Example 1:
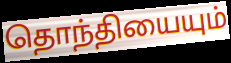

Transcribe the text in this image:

தொந்தியையும்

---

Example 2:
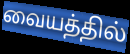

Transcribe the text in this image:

வையத்தில்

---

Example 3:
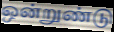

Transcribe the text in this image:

ஒன்றுண்டு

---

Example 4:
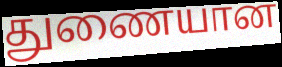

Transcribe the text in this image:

துணையான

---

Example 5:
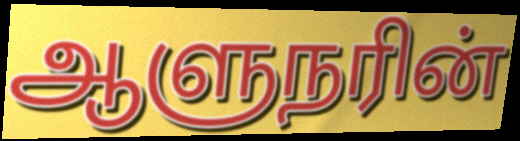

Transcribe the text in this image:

ஆளுநரின்